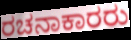
ರಚನಾಕಾರರು